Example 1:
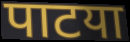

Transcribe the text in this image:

पाटया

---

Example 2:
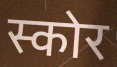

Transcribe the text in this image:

स्कोर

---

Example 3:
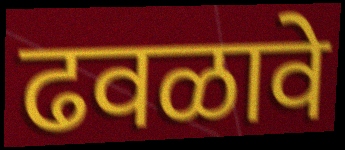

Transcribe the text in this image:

ढवळावे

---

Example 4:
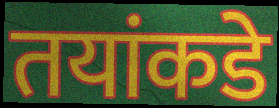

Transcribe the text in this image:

तयांकडे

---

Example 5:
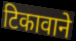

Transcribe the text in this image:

टिकावाने